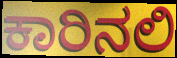
ಕಾರಿನಲಿ